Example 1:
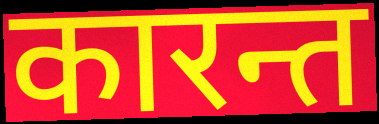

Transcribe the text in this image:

कारन्त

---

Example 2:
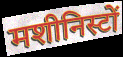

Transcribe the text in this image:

मशीनिस्टों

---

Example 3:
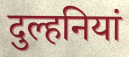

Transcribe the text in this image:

दुल्हनियां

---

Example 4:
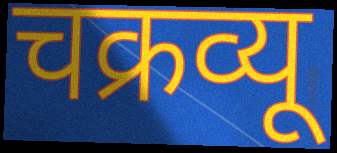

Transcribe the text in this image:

चक्रव्यू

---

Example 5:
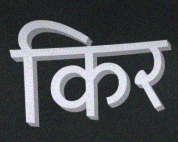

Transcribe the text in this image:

किर